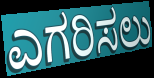
ಎಗರಿಸಲು